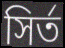
সির্ত